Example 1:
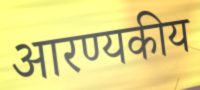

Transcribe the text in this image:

आरण्यकीय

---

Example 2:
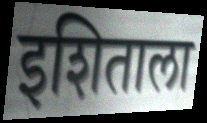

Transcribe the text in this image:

इशिताला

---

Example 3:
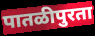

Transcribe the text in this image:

पातळीपुरता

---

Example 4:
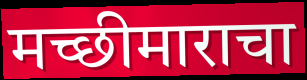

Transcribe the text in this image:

मच्छीमाराचा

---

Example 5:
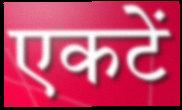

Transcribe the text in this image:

एकटें